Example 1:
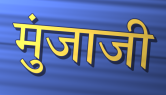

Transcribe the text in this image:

मुंजाजी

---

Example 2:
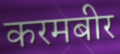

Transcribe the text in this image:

करमबीर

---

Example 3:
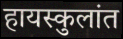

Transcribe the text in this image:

हायस्कुलांत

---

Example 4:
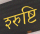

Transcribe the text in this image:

श्रुष्टि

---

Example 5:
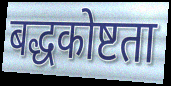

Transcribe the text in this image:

बद्धकोष्टता